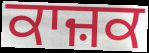
ਕਾਜ਼ਕ